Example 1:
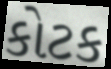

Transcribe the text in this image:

કોટક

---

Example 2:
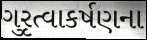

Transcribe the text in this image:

ગુરૃત્વાકર્ષણના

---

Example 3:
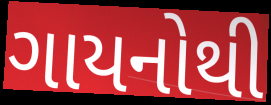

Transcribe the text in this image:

ગાયનોથી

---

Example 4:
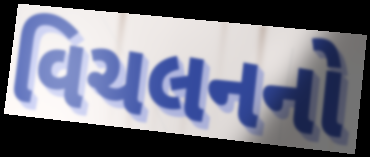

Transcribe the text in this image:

વિચલનનો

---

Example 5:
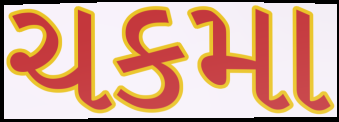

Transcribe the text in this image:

ચકમા